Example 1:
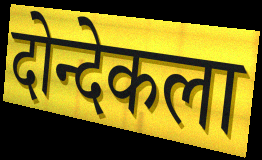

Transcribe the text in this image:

दोन्देकला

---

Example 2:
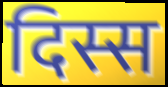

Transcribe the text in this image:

दिस्स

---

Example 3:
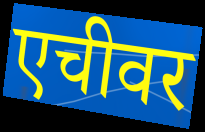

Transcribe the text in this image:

एचीवर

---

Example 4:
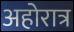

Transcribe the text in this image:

अहोरात्र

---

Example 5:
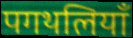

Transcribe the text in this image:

पगथलियाँ